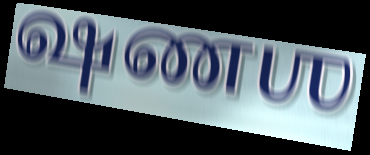
ஷணஶ